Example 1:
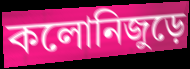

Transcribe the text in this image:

কলোনিজুড়ে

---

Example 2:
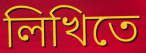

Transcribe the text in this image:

লিখিতে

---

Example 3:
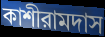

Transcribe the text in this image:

কাশীরামদাস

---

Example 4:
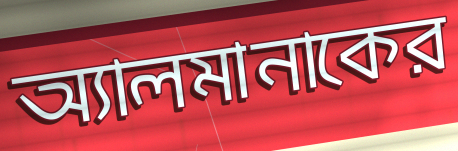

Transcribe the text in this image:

অ্যালমানাকের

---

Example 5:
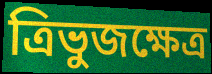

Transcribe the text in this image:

ত্রিভুজক্ষেত্র